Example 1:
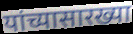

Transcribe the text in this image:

यांच्यासारख्या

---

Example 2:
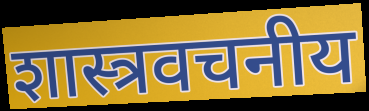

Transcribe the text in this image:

शास्त्रवचनीय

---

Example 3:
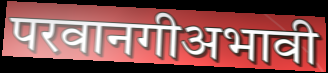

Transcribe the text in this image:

परवानगीअभावी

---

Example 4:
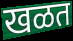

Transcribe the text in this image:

खळत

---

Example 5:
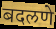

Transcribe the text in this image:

बदलणे